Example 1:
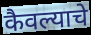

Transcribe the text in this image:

कैवल्याचे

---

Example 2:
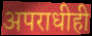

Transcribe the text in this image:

अपराधीही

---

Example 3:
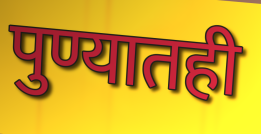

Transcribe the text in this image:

पुण्यातही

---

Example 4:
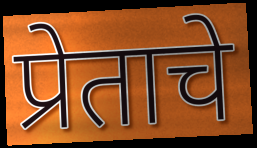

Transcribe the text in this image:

प्रेताचे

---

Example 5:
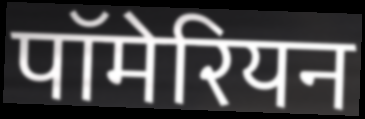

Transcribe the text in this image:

पॉमेरियन